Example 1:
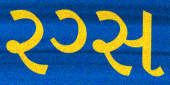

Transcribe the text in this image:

રગ્સ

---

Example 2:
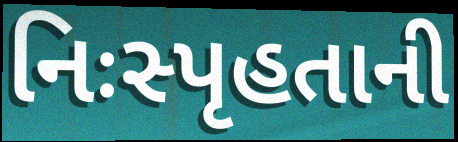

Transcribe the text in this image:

નિઃસ્પૃહતાની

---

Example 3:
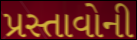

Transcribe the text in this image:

પ્રસ્તાવોની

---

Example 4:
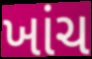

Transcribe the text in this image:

ખાંચ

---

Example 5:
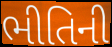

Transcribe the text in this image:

ભીતિની